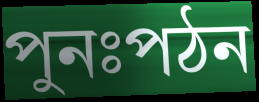
পুনঃপঠন